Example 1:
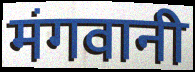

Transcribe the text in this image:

मंगवानी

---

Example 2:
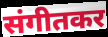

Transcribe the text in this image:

संगीतकर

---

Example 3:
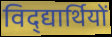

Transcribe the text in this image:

विद्द्यार्थियों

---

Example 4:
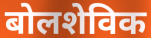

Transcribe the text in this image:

बोलशेविक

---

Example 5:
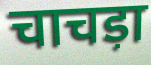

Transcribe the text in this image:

चाचड़ा